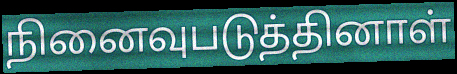
நினைவுபடுத்தினாள்